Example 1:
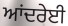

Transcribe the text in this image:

ਆਂਦਰੇਈ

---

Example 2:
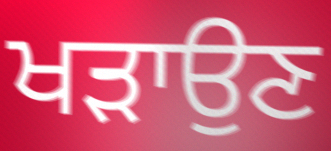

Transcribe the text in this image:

ਖੜਾਉਣ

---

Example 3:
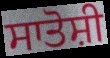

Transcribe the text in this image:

ਸਾਤੋਸ਼ੀ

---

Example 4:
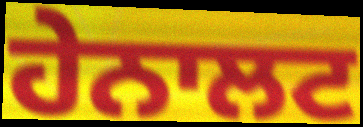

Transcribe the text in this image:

ਹੇਨਾਲਟ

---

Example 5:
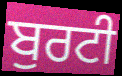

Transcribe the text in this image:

ਬੁਰਟੀ